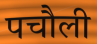
पचौली